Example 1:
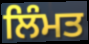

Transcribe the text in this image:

ਲਿੰਮਤ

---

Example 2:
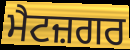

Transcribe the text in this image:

ਮੈਟਜ਼ਗਰ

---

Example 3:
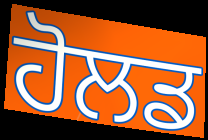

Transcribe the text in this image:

ਹੋਲਡ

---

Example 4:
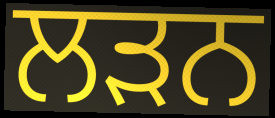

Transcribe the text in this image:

ਲੜਨ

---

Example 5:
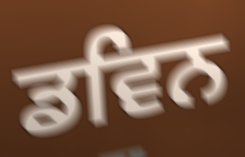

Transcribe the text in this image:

ਡਵਿਨ